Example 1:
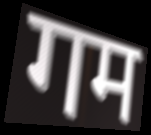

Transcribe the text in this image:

गम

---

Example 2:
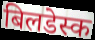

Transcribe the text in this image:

बिलडेस्क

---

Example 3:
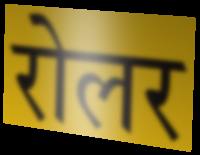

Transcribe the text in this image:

रोलर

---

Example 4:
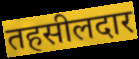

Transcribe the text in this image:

तहसीलदार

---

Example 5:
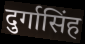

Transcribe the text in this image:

दुर्गासिंह